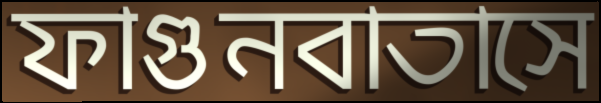
ফাগুনবাতাসে